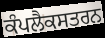
ਕੰਪਲੈਕਸਤਰਨ